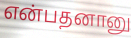
என்பதனானு